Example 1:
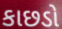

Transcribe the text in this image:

કાછડો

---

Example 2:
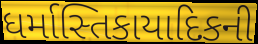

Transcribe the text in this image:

ધર્માસ્તિકાયાદિકની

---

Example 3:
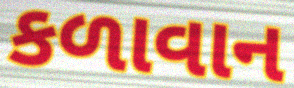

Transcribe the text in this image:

કળાવાન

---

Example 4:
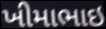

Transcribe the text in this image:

ખીમાભાઇ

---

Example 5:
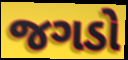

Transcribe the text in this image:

જગડો